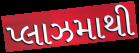
પ્લાઝમાથી